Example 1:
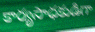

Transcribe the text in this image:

కార్యసాధకుడిగా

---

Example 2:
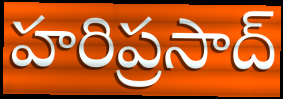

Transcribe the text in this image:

హరిప్రసాద్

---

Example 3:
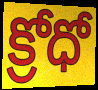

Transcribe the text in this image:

క్రోధో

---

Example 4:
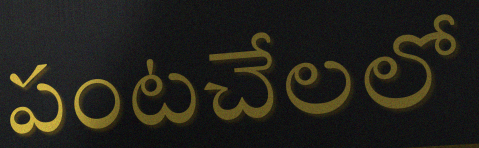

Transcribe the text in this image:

పంటచేలలో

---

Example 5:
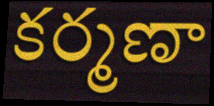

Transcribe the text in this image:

కర్మణా